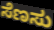
ಸೆಣಸು